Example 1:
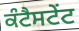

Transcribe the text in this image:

ਕੰਟੈਸਟੇਂਟ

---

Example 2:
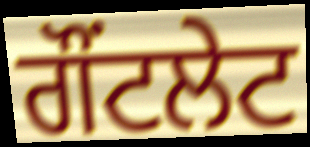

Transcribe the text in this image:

ਗੌਂਟਲੇਟ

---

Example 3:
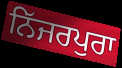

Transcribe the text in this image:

ਨਿੱਜਰਪੁਰਾ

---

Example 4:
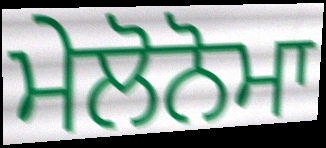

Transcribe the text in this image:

ਮੇਲੋਨੋਮਾ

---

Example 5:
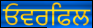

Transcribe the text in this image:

ਓਵਰਫਿਲ